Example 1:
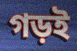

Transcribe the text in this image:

গড়ই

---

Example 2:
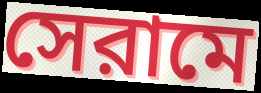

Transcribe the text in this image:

সেরামে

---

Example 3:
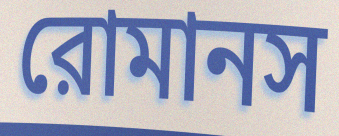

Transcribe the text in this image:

রোমানস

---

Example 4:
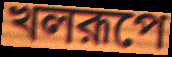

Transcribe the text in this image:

খলরূপে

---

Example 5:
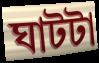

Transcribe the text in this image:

ঘাটটা